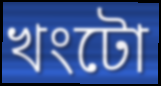
খংটো